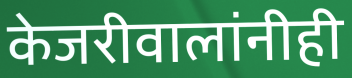
केजरीवालांनीही